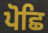
ਪੋਛਿ